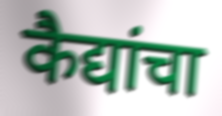
कैद्यांचा